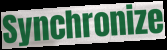
Synchronize